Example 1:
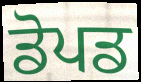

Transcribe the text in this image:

ਡੋਪਡ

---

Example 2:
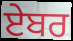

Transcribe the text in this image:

ਏਬਰ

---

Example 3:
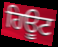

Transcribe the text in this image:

ਹਿਊਟ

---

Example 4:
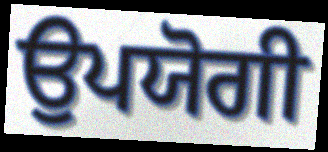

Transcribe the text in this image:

ਉਪਯੋਗੀ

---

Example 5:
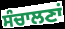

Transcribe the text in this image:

ਸੰਚਾਲਣਾਂ